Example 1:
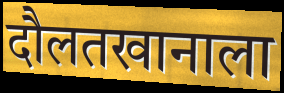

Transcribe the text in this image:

दौलतखानाला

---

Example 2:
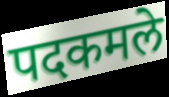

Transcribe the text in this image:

पदकमले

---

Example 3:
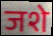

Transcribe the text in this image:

जशे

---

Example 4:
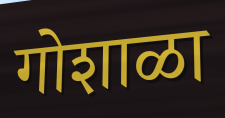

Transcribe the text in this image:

गोशाळा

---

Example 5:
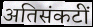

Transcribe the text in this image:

अतिसंकटीं